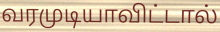
வரமுடியாவிட்டால்